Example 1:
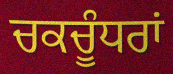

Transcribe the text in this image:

ਚਕਚੂੰਧਰਾਂ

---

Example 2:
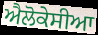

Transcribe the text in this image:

ਐਲੋਕੇਸੀਆ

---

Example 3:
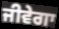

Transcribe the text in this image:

ਜੀਵੇਗਾ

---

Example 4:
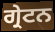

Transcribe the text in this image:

ਗ੍ਰੇਟਨ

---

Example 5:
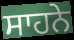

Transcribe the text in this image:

ਸਾਹਨੇ